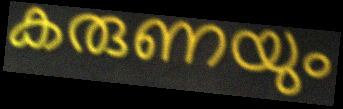
കരുണയും